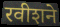
रवीशने